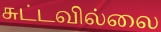
சுட்டவில்லை